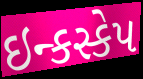
ઇન્કસ્કેપ